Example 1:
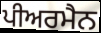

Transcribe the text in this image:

ਪੀਅਰਮੈਨ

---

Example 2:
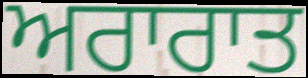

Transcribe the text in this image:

ਅਰਾਰਾਤ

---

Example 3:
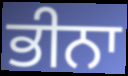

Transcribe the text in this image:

ਭੀਨਾ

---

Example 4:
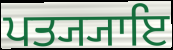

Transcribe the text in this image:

ਪਤ੍ਯ੍ਯਾਇ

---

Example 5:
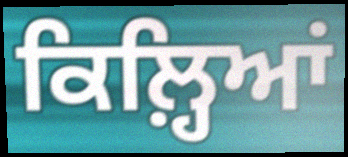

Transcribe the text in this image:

ਕਿਲ਼੍ਹਿਆਂ